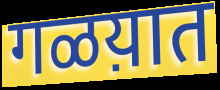
गळय़ात